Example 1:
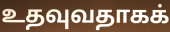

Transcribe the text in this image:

உதவுவதாகக்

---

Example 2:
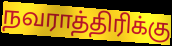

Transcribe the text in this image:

நவராத்திரிக்கு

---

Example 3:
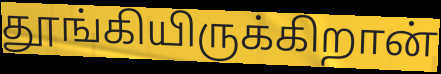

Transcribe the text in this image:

தூங்கியிருக்கிறான்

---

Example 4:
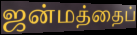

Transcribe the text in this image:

ஜன்மத்தைப்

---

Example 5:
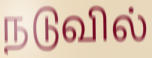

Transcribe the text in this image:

நடுவில்